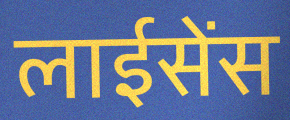
लाईसेंस